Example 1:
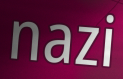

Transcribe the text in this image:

nazi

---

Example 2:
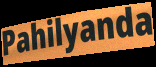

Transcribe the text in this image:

Pahilyanda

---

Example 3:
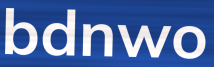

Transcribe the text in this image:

bdnwo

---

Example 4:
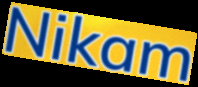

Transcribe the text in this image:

Nikam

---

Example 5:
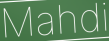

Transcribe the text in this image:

Mahdi